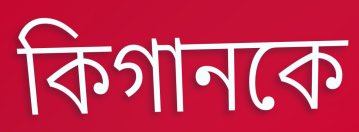
কিগানকে